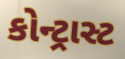
કોન્ટ્રાસ્ટ